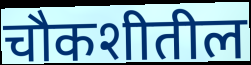
चौकशीतील